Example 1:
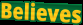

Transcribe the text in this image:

Believes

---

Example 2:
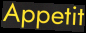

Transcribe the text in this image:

Appetit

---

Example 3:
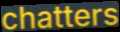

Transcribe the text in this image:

chatters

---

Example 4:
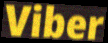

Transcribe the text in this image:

Viber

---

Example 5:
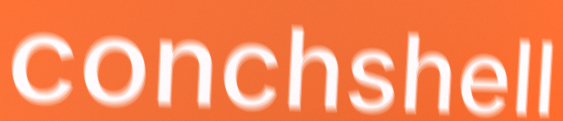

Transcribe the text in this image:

conchshell